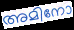
അമിനോ